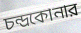
চন্দ্রকোনার